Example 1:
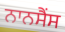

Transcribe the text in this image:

ਨਾਨਸੈਂਸ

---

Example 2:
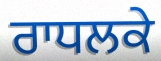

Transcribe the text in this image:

ਰਾਧਲਕੇ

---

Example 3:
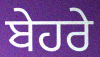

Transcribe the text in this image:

ਬੇਹਰੇ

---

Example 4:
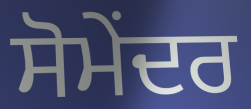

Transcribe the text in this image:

ਸੋਮੇਂਦਰ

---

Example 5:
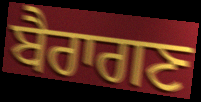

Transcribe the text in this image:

ਬੈਰਾਗਣ